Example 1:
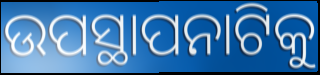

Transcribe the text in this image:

ଉପସ୍ଥାପନାଟିକୁ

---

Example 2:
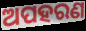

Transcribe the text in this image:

ଅପହରଣ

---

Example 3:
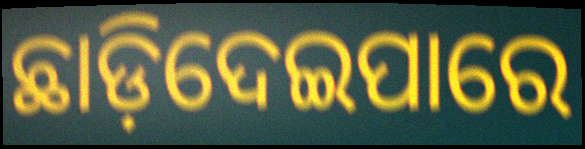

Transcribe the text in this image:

ଛାଡ଼ିଦେଇପାରେ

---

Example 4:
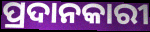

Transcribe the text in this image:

ପ୍ରଦାନକାରୀ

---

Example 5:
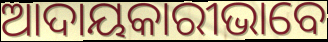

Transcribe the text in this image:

ଆଦାୟକାରୀଭାବେ